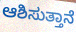
ಆಶಿಸುತ್ತಾನೆ